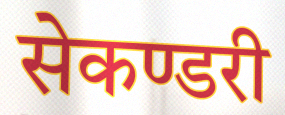
सेकण्‍डरी